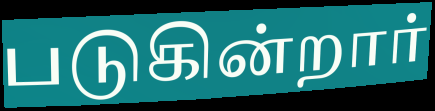
படுகின்றார்